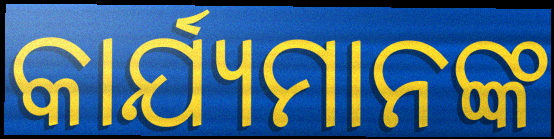
କାର୍ଯ୍ୟମାନଙ୍କ